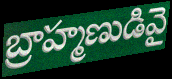
బ్రాహ్మణుడివై